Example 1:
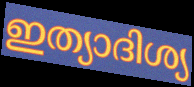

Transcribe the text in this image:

ഇത്യാദിശ്യ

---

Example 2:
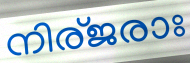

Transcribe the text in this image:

നിര്ജരാഃ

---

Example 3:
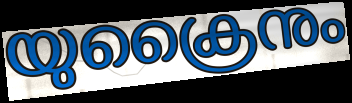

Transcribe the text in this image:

യുക്രൈനും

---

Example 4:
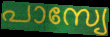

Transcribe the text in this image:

പാസ്യേ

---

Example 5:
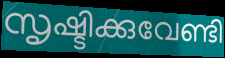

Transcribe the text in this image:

സൃഷ്ടിക്കുവേണ്ടി